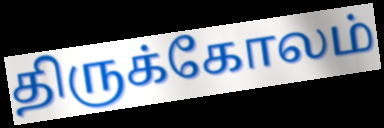
திருக்கோலம்